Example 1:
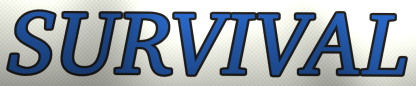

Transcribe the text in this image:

SURVIVAL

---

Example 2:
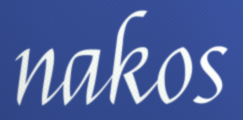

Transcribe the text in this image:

nakos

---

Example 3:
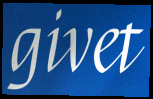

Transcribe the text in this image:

givet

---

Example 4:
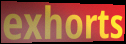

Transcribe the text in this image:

exhorts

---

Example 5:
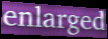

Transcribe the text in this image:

enlarged